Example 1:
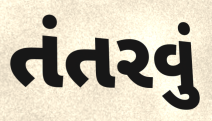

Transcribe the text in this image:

તંતરવું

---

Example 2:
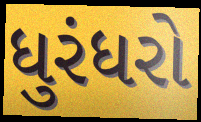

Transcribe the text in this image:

ધુરંધરો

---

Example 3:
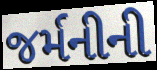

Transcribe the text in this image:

જર્મનીની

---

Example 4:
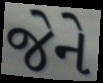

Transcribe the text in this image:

જેને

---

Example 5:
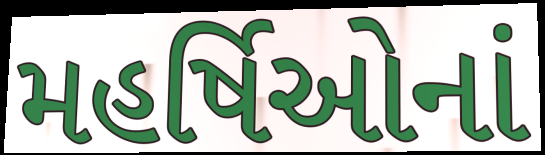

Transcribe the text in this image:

મહર્ષિઓનાં